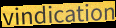
vindication